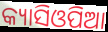
କ୍ୟାସିଓପିଆ